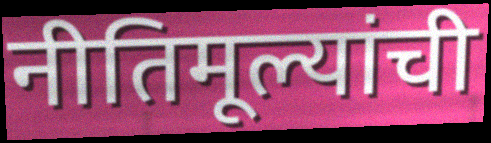
नीतिमूल्यांची